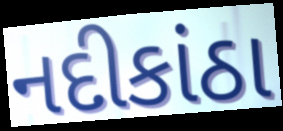
નદીકાંઠા